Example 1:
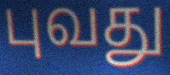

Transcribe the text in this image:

புவது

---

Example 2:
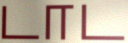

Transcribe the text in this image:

டாட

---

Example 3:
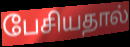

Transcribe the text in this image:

பேசியதால்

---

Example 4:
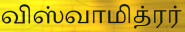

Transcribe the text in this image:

விஸ்வாமித்ரர்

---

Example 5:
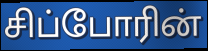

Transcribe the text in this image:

சிப்போரின்